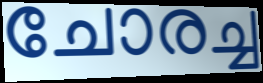
ചോരച്ച